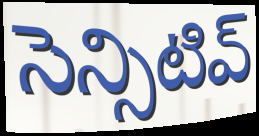
సెన్సిటివ్